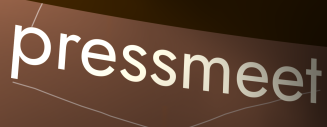
pressmeet